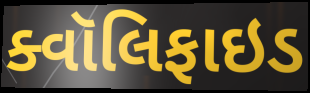
ક્વૉલિફાઇડ